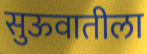
सुऊवातीला